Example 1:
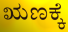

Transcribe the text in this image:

ಋಣಕ್ಕೆ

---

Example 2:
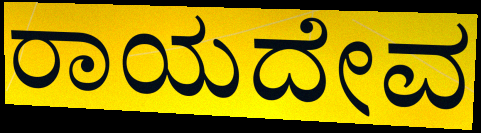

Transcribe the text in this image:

ರಾಯದೇವ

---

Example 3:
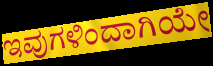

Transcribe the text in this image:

ಇವುಗಳಿಂದಾಗಿಯೇ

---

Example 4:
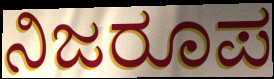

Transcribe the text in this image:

ನಿಜರೂಪ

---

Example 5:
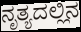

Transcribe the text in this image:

ನೃತ್ಯದಲ್ಲಿನ